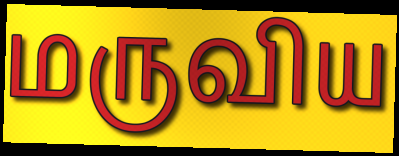
மருவிய